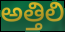
అత్తిలి